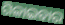
ଗିଳାଇବାର